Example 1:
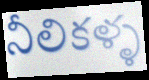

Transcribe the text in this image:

నీలికళ్ళ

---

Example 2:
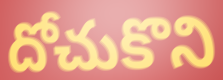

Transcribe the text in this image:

దోచుకొని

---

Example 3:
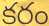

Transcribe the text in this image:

కరం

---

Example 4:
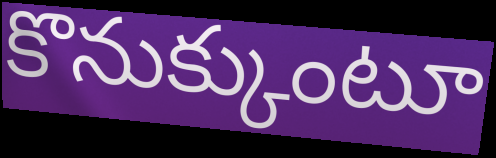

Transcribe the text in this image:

కొనుక్కుంటూ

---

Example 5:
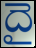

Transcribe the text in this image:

దై